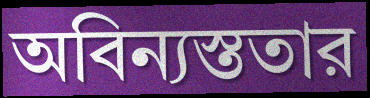
অবিন্যস্ততার